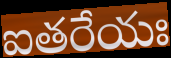
ఐతరేయః